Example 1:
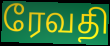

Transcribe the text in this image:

ரேவதி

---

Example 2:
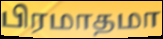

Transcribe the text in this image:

பிரமாதமா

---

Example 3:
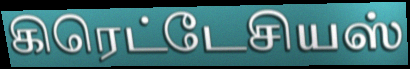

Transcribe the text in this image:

கிரெட்டேசியஸ்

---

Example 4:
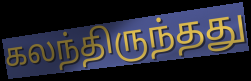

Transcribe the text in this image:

கலந்திருந்தது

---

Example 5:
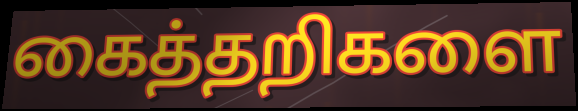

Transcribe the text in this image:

கைத்தறிகளை